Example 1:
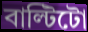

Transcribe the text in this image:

বাল্টিটো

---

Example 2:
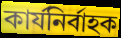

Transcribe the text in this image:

কাৰ্যনিৰ্বাহক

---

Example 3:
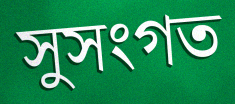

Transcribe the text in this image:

সুসংগত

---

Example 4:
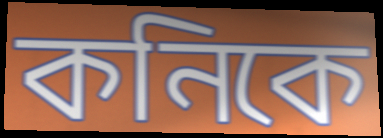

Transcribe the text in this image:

কনিকে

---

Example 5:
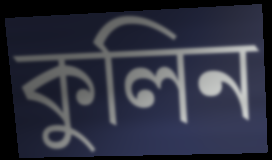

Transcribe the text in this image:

কুলিন